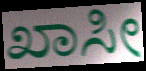
ಖಾಸೀ